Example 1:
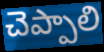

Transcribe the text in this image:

చెప్పాలి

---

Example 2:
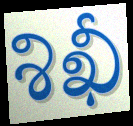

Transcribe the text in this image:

శిఖీ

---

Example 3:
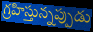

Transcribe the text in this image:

గ్రహిస్తున్నప్పుడు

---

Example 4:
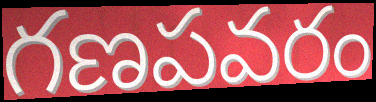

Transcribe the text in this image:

గణపవరం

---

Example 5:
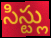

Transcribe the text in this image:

సిస్ట్లు